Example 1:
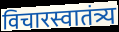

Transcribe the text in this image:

विचारस्वातंत्र्य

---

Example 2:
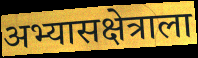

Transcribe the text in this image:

अभ्यासक्षेत्राला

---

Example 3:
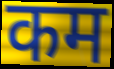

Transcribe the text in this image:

कम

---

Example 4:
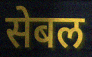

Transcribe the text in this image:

सेबल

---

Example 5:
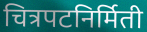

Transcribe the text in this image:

चित्रपटनिर्मिती